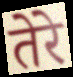
तेरे